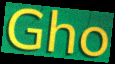
Gho